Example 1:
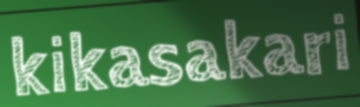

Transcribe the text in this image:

kikasakari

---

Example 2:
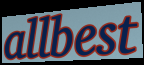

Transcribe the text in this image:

allbest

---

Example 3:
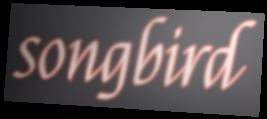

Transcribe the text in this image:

songbird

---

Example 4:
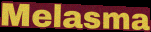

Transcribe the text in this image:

Melasma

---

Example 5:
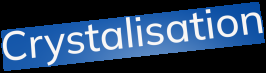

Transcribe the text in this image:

Crystalisation